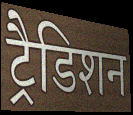
ट्रैडिशन